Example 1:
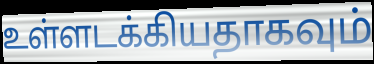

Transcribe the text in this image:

உள்ளடக்கியதாகவும்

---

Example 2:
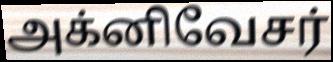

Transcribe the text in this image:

அக்னிவேசர்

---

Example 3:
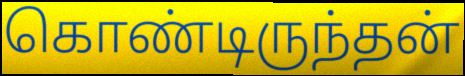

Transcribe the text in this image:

கொண்டிருந்தன்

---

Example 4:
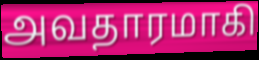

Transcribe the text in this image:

அவதாரமாகி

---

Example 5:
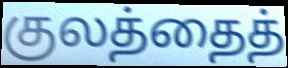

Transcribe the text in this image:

குலத்தைத்